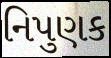
નિપુણક